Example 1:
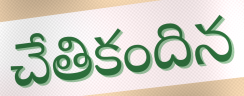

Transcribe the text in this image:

చేతికందిన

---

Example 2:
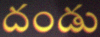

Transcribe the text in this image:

దండు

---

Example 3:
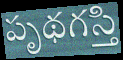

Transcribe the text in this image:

పృథగస్తి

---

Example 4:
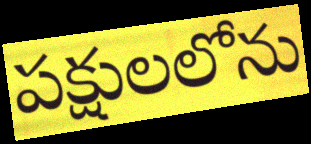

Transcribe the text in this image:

పక్షులలోను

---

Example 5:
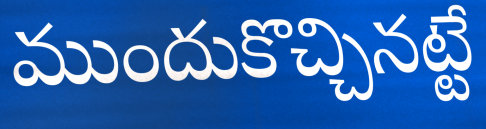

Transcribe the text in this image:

ముందుకొచ్చినట్టే